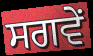
ਸਗਵੇਂ